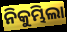
ନିକୁମ୍ଭିଲା